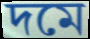
দমে